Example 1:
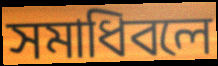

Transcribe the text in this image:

সমাধিবলে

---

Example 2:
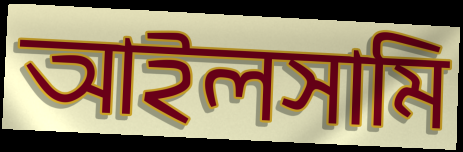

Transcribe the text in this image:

আইলসামি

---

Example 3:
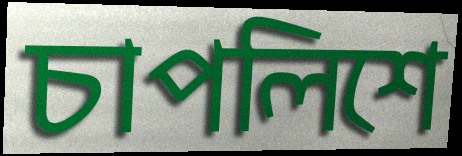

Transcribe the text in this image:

চাপলিশে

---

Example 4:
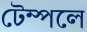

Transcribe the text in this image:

টেম্পলে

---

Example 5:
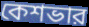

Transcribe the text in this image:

কেশভার